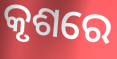
କୃଶରେ